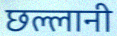
छल्लानी